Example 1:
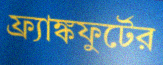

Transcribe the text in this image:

ফ্র্যাঙ্কফুর্টের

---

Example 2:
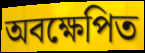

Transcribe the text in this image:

অবক্ষেপিত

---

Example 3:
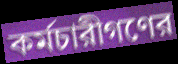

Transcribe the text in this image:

কর্মচারীগণের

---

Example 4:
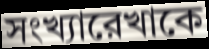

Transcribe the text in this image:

সংখ্যারেখাকে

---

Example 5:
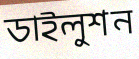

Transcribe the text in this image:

ডাইলুশন